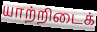
யாற்றிடைக்